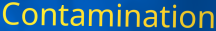
Contamination